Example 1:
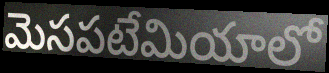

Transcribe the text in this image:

మెసపటేమియాలో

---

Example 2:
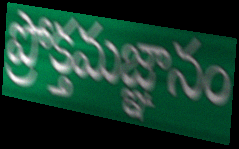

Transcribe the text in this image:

ప్రోక్తమజ్ఞానం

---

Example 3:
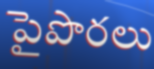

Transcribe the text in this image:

పైపొరలు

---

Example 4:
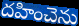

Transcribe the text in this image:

దహించెను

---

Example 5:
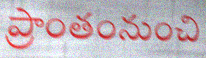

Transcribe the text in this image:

ప్రాంతంనుంచి